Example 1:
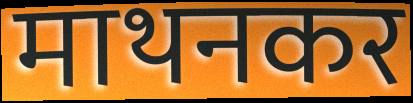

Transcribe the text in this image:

माथनकर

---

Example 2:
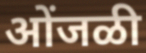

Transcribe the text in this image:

ओंजळी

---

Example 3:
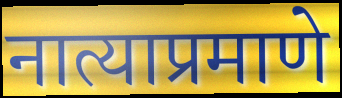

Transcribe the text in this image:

नात्याप्रमाणे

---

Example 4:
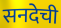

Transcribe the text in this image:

सनदेची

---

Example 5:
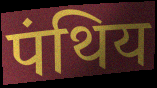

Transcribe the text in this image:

पंथिय